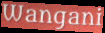
Wangani